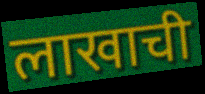
लाखाची